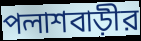
পলাশবাড়ীর